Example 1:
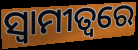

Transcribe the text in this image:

ସ୍ୱାମୀତ୍ୱରେ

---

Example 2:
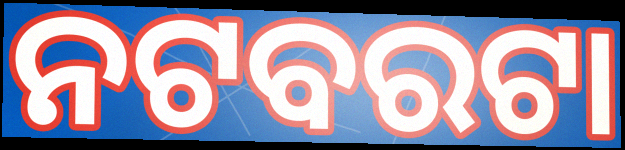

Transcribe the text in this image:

ନଟବରଟା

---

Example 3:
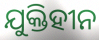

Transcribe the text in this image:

ଯୁକ୍ତିହୀନ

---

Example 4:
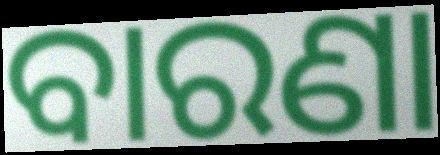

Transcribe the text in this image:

ବାରଣା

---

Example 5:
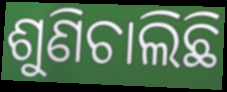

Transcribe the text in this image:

ଶୁଣିଚାଲିଛି